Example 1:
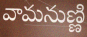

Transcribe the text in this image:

వామనుణ్ణి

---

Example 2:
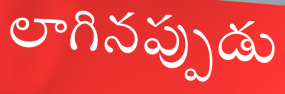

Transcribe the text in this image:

లాగినప్పుడు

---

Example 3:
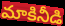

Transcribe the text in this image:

మాకినీడి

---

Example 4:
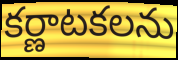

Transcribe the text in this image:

కర్ణాటకలను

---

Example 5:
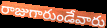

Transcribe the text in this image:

రాజుగారుండేవారు